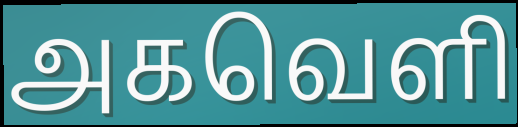
அகவெளி